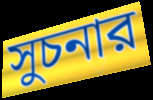
সুচনার